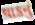
થાકનું